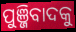
ପୁଞ୍ଜିବାଦକୁ